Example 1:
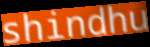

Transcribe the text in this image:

shindhu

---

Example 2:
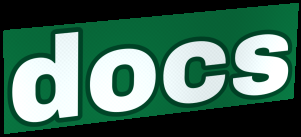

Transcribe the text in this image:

docs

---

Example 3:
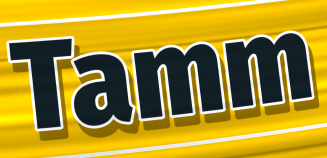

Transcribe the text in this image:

Tamm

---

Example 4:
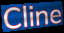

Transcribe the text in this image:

Cline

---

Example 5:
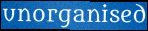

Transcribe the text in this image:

unorganised